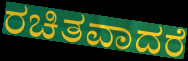
ರಚಿತವಾದರೆ